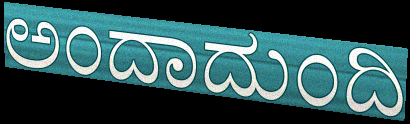
ಅಂದಾದುಂದಿ